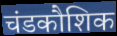
चंडकौशिक